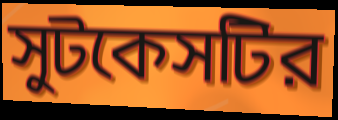
সুটকেসটির